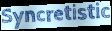
Syncretistic